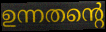
ഉന്നതന്റെ